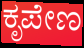
ಕೃಪೇಣ